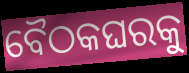
ବୈଠକଘରକୁ